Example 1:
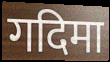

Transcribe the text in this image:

गदिमा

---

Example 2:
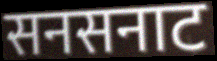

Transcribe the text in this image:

सनसनाट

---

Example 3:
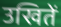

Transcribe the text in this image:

उखितें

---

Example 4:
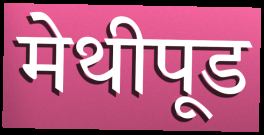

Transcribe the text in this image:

मेथीपूड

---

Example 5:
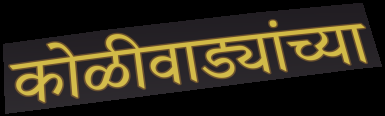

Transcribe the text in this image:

कोळीवाड्यांच्या